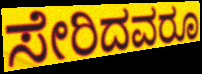
ಸೇರಿದವರೂ